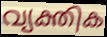
വ്യക്തിക